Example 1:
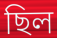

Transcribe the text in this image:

ছিল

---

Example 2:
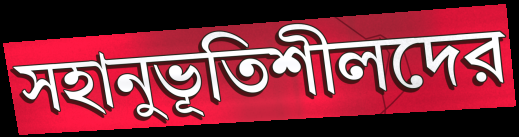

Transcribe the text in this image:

সহানুভূতিশীলদের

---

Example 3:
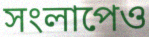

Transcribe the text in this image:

সংলাপেও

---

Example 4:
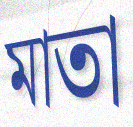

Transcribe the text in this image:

মাতা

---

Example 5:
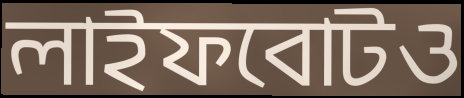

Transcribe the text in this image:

লাইফবোটও